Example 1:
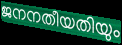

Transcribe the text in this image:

ജനനതീയതിയും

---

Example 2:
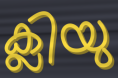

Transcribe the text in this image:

ക്ലിയു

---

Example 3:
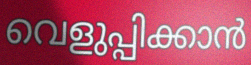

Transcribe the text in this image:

വെളുപ്പിക്കാൻ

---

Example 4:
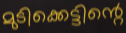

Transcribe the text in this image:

മുടിക്കെട്ടിന്റെ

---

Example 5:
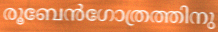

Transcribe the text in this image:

രൂബേൻഗോത്രത്തിനു